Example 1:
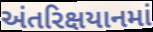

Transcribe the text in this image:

અંતરિક્ષયાનમાં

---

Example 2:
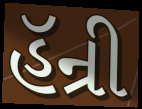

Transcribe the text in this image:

હૅન્રી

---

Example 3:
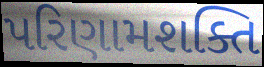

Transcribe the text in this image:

પરિણામશક્તિ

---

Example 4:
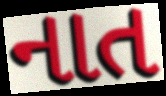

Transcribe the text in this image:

નાત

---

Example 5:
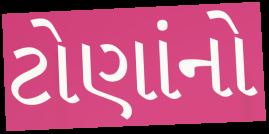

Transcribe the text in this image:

ટોણાંનો